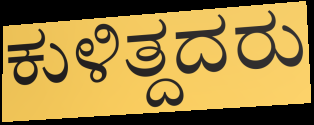
ಕುಳಿತ್ದದರು